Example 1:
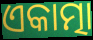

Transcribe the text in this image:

ଏକାତ୍ମା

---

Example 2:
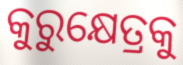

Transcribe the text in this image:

କୁରୁକ୍ଷେତ୍ରକୁ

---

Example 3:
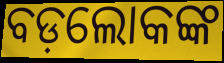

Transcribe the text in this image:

ବଡ଼ଲୋକଙ୍କ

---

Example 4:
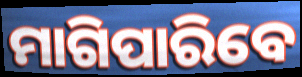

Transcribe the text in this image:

ମାଗିପାରିବେ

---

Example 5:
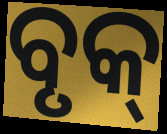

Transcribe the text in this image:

ବୃକ୍